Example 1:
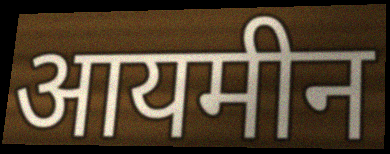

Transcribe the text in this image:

आयमीन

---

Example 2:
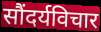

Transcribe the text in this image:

सौंदर्यविचार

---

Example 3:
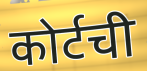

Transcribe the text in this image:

कोर्टची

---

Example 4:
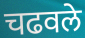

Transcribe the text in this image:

चढवले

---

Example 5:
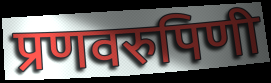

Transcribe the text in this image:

प्रणवरुपिणी